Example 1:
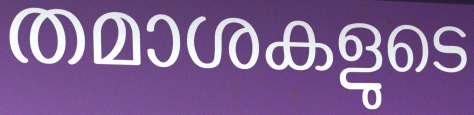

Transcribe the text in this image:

തമാശകളുടെ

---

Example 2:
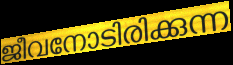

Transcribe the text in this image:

ജീവനോടിരിക്കുന്ന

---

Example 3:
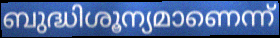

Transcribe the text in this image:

ബുദ്ധിശൂന്യമാണെന്ന്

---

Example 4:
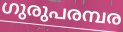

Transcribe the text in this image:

ഗുരുപരമ്പര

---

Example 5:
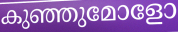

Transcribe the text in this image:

കുഞ്ഞുമോളോ